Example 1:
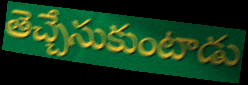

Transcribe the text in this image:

తెచ్చేసుకుంటాడు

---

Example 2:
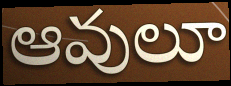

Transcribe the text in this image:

ఆవులూ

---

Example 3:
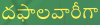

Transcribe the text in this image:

దఫాలవారీగా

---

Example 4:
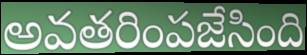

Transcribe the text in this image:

అవతరింపజేసింది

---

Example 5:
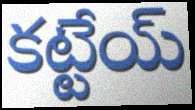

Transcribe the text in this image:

కట్టేయ్